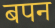
बपन